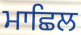
ਮਾਛਿਲ